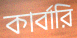
কার্বারি